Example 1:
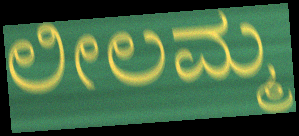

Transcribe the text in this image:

ಲೀಲಮ್ಮ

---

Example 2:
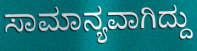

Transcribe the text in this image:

ಸಾಮಾನ್ಯವಾಗಿದ್ದು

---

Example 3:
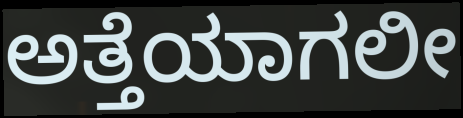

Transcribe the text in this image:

ಅತ್ತೆಯಾಗಲೀ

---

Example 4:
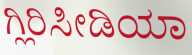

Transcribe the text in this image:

ಗ್ಲಿರಿಸೀಡಿಯಾ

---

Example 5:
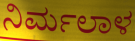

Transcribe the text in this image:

ನಿರ್ಮಲಾಳ